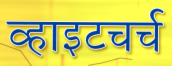
व्हाइटचर्च